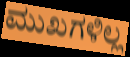
ಮುಖಗಳಿಲ್ಲ